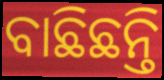
ବାଛିଛନ୍ତି